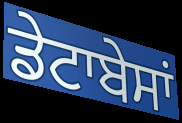
ਡੇਟਾਬੇਸਾਂ